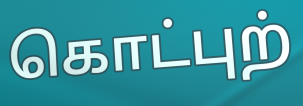
கொட்புற்